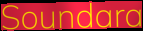
Soundara